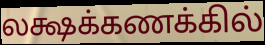
லக்ஷக்கணக்கில்